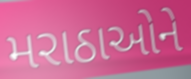
મરાઠાઓને